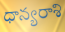
ధాన్యరాశి